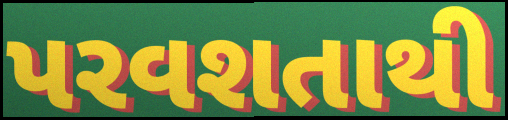
પરવશતાથી